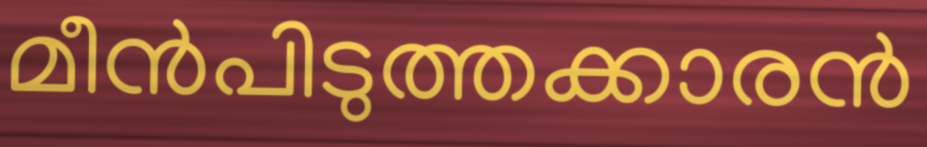
മീൻപിടുത്തക്കാരൻ